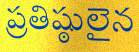
ప్రతిష్ఠులైన